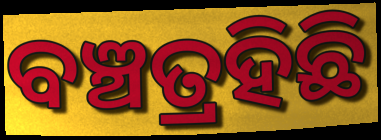
ବଞ୍ଚତ୍ରହିଛି